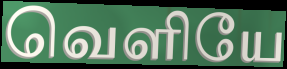
வெளியே